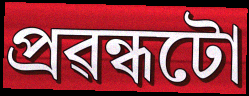
প্ৰৱন্ধটো